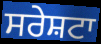
ਸਰੇਸ਼ਟਾ